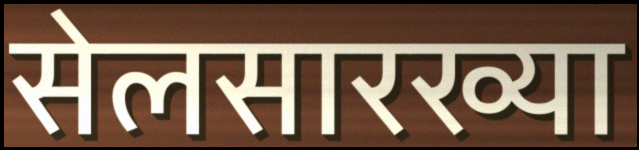
सेलसारख्या